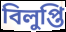
বিলুপ্তি